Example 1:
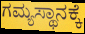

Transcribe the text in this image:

ಗಮ್ಯಸ್ಥಾನಕ್ಕೆ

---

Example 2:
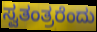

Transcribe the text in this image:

ಸ್ವತಂತ್ರರೆಂದು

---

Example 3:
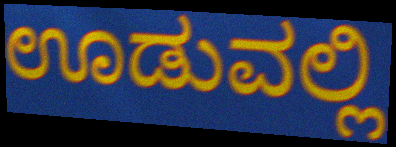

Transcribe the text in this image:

ಊಡುವಲ್ಲಿ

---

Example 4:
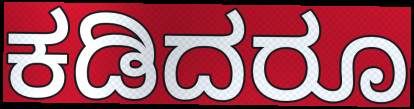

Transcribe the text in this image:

ಕಡಿದರೂ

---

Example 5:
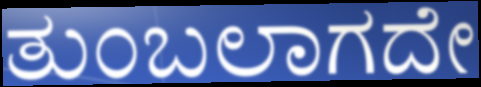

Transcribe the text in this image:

ತುಂಬಲಾಗದೇ